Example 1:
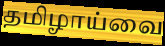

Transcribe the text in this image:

தமிழாய்வை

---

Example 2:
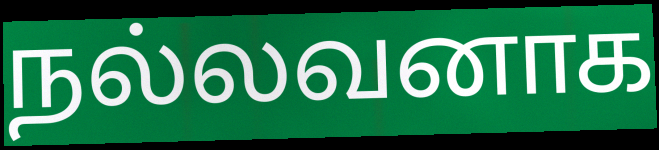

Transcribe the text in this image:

நல்லவனாக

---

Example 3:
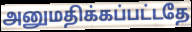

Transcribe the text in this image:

அனுமதிக்கப்பட்டதே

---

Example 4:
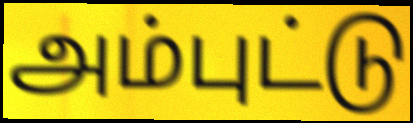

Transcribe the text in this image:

அம்புட்டு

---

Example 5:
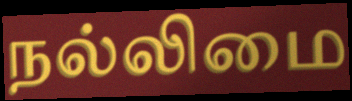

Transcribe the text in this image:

நல்லிமை